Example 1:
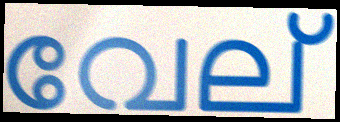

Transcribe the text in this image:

വേല്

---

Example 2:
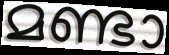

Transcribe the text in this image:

മണ്ടാ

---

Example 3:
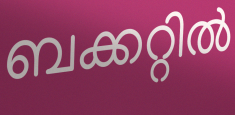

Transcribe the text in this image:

ബക്കറ്റിൽ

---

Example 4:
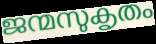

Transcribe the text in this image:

ജന്മസുകൃതം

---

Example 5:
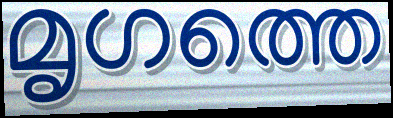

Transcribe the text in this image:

മൃഗത്തെ